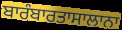
ਬਾਰੰਬਾਰਤਾਸਾਲਾਨਾ